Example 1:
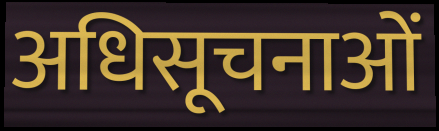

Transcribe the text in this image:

अधिसूचनाओं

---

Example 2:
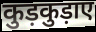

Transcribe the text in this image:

कुड़कुड़ाए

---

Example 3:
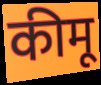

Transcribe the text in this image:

कीमू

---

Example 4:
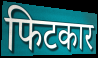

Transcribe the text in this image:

फिटकार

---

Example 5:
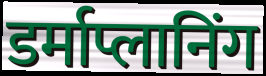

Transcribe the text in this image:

डर्माप्लानिंग